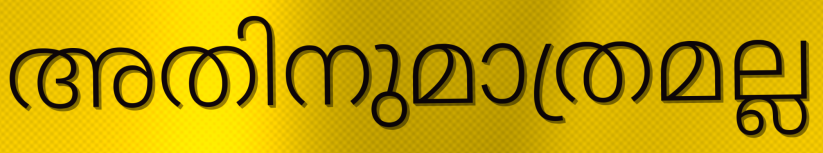
അതിനുമാത്രമല്ല